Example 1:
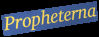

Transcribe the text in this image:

Propheterna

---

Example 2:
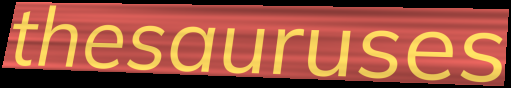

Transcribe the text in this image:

thesauruses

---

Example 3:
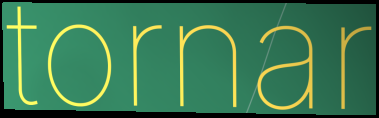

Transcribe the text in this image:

tornar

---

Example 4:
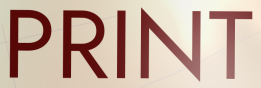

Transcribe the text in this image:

PRINT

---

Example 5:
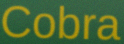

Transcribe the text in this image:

Cobra